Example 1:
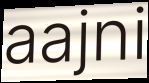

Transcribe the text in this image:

aajni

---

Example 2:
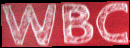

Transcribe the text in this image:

WBC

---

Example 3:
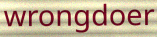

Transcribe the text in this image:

wrongdoer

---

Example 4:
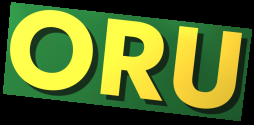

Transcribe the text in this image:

ORU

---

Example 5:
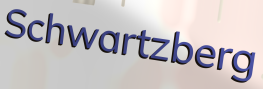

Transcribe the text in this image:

Schwartzberg